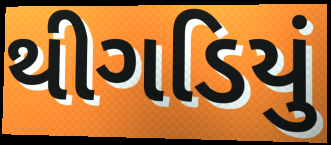
થીગડિયું